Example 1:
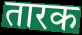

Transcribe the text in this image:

तारक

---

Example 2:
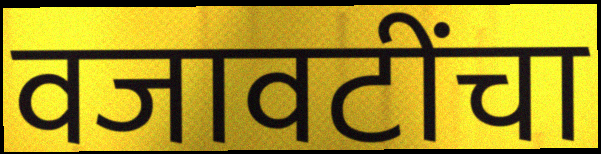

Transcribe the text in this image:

वजावटींचा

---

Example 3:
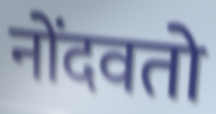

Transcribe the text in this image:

नोंदवतो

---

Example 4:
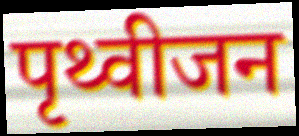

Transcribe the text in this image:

पृथ्वीजन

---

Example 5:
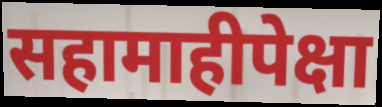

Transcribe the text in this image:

सहामाहीपेक्षा